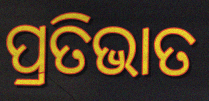
ପ୍ରତିଭାତ